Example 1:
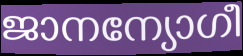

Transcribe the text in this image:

ജാനന്യോഗീ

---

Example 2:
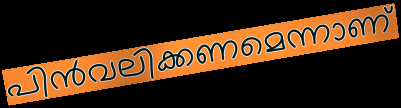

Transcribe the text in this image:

പിൻവലിക്കണമെന്നാണ്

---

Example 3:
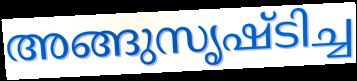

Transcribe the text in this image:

അങ്ങുസൃഷ്ടിച്ച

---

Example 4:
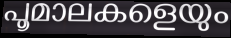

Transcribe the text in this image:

പൂമാലകളെയും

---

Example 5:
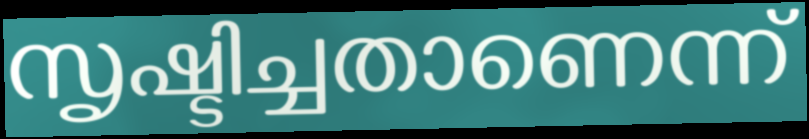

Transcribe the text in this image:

സൃഷ്ടിച്ചതാണെന്ന്